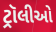
ટ્રૉલીઓ